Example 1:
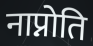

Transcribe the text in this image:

नाप्नोति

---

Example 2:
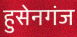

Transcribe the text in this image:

हुसेनगंज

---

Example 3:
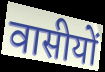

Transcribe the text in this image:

वासीयों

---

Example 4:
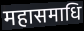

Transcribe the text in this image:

महासमाधि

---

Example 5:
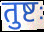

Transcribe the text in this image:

तुष्टः